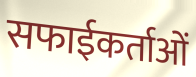
सफाईकर्ताओं